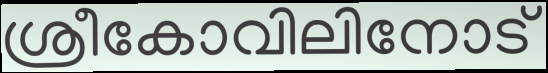
ശ്രീകോവിലിനോട്